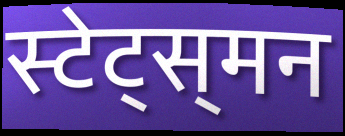
स्टेट्स्‌मन